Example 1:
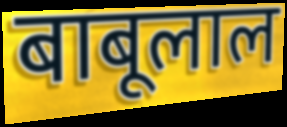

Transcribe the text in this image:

बाबूलाल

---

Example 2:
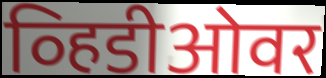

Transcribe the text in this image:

व्हिडीओवर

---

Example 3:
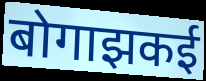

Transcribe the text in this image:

बोगाझकई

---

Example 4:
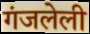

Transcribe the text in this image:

गंजलेली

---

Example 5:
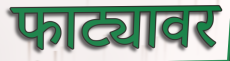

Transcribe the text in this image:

फाट्यावर